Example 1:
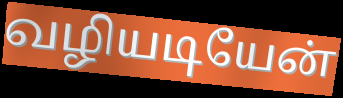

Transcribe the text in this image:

வழியடியேன்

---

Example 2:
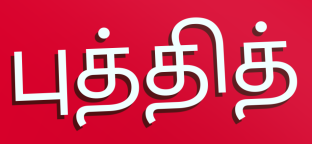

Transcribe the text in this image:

புத்தித்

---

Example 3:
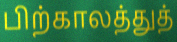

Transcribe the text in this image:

பிற்காலத்துத்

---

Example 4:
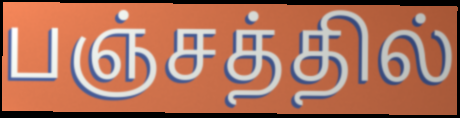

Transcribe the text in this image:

பஞ்சத்தில்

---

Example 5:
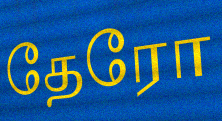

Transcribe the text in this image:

தேரோ